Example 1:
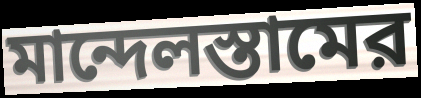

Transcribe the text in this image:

মান্দেলস্তামের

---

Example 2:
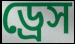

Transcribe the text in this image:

ড্রেস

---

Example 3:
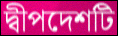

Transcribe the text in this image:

দ্বীপদেশটি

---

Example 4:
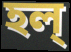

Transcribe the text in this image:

হল্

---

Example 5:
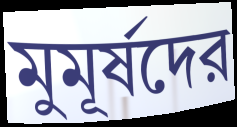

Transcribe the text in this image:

মুমূর্ষদের